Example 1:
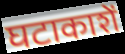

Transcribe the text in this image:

घटाकाशें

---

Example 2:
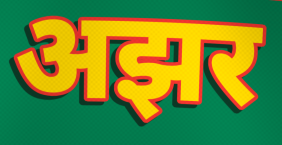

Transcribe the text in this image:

अझर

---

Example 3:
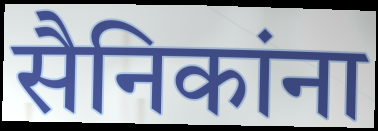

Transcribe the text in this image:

सैनिकांना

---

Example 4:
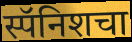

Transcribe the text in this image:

स्पॅनिशचा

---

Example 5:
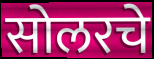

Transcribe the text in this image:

सोलरचे